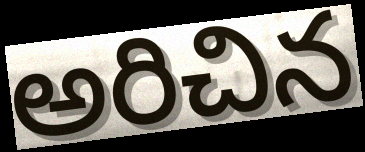
అరిచిన